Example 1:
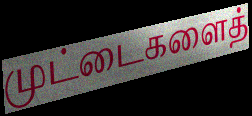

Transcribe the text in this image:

முட்டைகளைத்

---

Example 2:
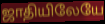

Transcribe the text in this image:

ஜாதியிலேயே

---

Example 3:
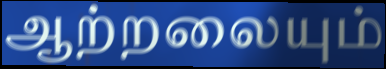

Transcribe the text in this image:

ஆற்றலையும்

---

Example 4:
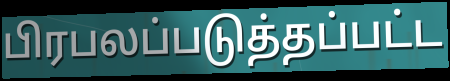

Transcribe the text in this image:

பிரபலப்படுத்தப்பட்ட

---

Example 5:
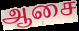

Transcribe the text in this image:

ஆசை